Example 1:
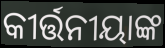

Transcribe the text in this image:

କୀର୍ତ୍ତନୀୟାଙ୍କ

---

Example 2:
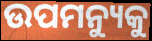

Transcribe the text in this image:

ଉପମନ୍ୟୁକୁ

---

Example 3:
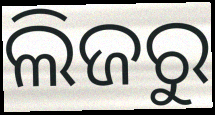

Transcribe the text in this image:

ଲିଜରୁ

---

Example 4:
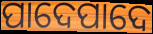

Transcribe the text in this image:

ପାଦେପାଦେ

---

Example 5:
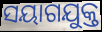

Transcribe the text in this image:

ସୟାଗଯୁକ୍ତ